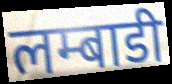
लम्बाडी